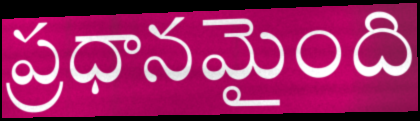
ప్రధానమైంది